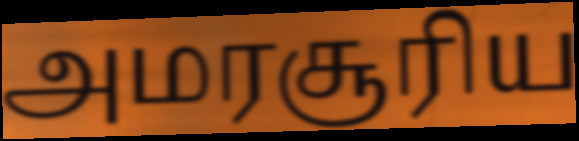
அமரசூரிய